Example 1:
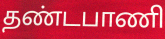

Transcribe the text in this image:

தண்டபாணி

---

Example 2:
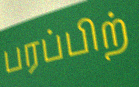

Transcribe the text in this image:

பரப்பிற்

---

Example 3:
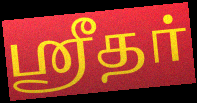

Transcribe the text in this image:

ஸ்ரீதர்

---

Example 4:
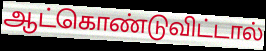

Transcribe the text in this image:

ஆட்கொண்டுவிட்டால்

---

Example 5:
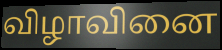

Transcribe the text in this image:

விழாவினை